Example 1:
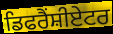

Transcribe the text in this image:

ਡਿਫਰੈਂਸ਼ੀਏਟਰ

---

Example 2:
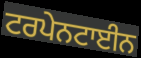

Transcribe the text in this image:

ਟਰਪੇਨਟਾਈਨ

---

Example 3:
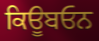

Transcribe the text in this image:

ਕਿਊਬਓਨ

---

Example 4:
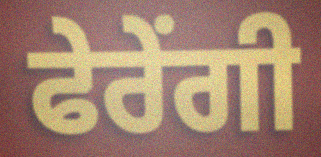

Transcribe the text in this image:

ਫੇਰੇਂਗੀ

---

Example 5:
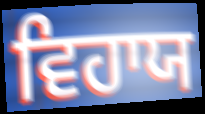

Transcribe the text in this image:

ਵਿਹਾਯ